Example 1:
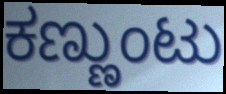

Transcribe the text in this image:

ಕಣ್ಣುಂಟು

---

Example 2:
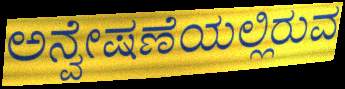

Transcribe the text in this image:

ಅನ್ವೇಷಣೆಯಲ್ಲಿರುವ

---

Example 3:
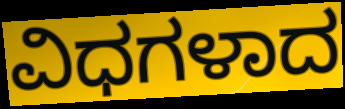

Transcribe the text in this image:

ವಿಧಗಳಾದ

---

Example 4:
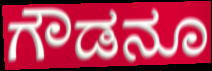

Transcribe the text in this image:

ಗೌಡನೂ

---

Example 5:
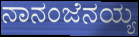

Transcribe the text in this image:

ನಾನಂಜೆನಯ್ಯ